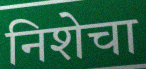
निशेचा